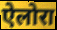
ऐलोरा